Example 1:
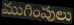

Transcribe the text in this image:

ముగింపులు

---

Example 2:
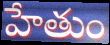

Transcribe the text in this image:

హేతుం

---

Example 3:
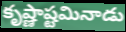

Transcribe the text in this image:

కృష్ణాష్టమినాడు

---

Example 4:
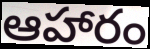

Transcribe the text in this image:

ఆహారం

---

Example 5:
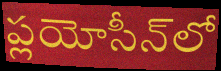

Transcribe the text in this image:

ప్లయోసీన్‌లో